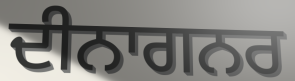
ਦੀਨਾਗਨਰ